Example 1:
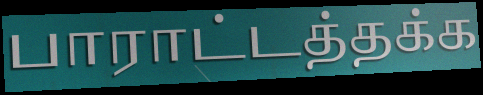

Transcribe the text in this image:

பாராட்டத்தக்க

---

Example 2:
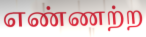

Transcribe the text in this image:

எண்ணற்ற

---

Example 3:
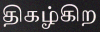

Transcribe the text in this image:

திகழ்கிற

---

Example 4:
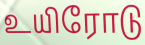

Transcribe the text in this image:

உயிரோடு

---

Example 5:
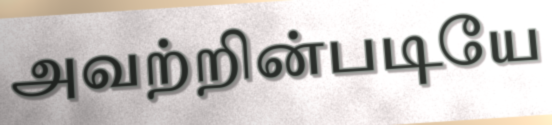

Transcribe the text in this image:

அவற்றின்படியே